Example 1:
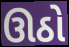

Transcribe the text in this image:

ઊઠો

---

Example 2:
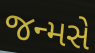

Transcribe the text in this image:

જન્મસે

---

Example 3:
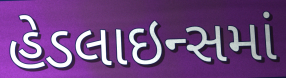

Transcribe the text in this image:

હેડલાઇન્સમાં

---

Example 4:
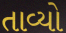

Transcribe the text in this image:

તાવ્યો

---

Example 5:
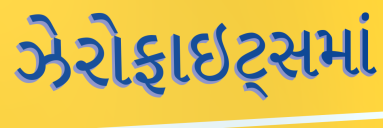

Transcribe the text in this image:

ઝેરોફાઇટ્સમાં